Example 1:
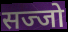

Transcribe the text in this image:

सज्जो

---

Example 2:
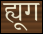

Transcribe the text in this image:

ह्यूग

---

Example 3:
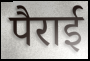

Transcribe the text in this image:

पैराई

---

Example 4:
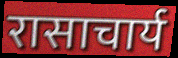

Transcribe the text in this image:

रासाचार्य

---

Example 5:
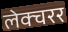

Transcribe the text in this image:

लेक्‍चरर